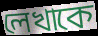
লেখাকে